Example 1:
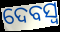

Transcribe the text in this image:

ଦେବସ୍ୱ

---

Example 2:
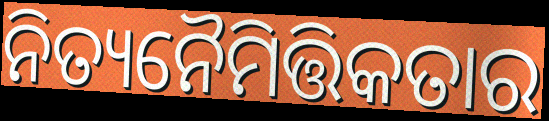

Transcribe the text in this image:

ନିତ୍ୟନୈମିତ୍ତିକତାର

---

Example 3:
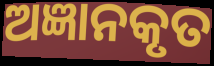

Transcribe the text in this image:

ଅଜ୍ଞାନକୃତ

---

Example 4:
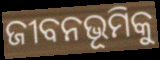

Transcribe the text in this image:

ଜୀବନଭୂମିକୁ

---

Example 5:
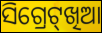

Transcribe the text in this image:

ସିଗ୍ରେଟ୍‌ଖିଆ